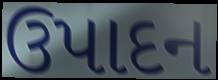
ઉપાદન